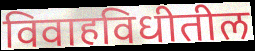
विवाहविधीतील